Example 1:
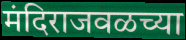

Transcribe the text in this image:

मंदिराजवळच्या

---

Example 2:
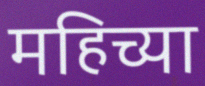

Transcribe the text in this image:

महिच्या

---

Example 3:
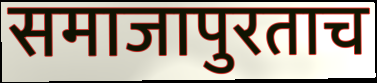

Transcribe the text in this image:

समाजापुरताच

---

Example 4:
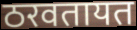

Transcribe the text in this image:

ठरवतायत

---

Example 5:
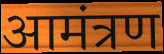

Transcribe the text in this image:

आमंत्रण